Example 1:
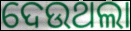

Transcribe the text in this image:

ଦେଉଥଲା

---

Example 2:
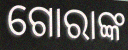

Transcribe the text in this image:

ଗୋରାଙ୍କ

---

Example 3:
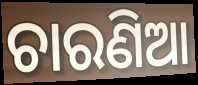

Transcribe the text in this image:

ଚାରଣିଆ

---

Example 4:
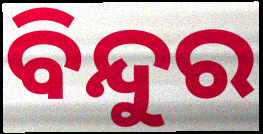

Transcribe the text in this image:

ବିନ୍ଦୁର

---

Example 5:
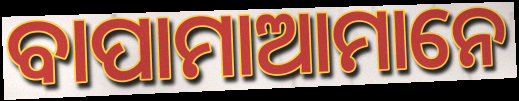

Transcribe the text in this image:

ବାପାମାଆମାନେ